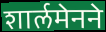
शार्लमेनने